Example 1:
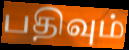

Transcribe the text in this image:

பதிவும்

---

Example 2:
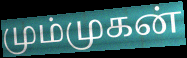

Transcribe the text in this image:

மும்முகன்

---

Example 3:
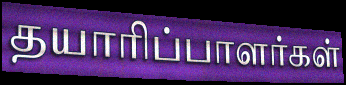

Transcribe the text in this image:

தயாரிப்பாளர்கள்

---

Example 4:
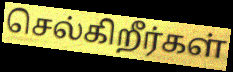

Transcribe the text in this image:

செல்கிறீர்கள்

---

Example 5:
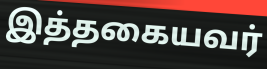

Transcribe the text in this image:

இத்தகையவர்